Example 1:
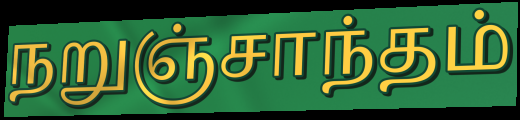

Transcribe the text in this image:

நறுஞ்சாந்தம்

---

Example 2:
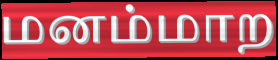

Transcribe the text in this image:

மனம்மாற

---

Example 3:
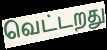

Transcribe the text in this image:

வெட்டறது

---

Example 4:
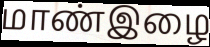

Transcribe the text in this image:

மாண்இழை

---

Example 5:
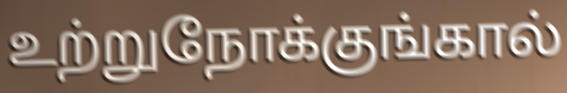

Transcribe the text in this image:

உற்றுநோக்குங்கால்